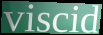
viscid